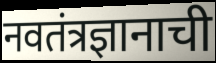
नवतंत्रज्ञानाची